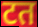
टत